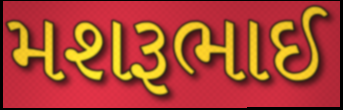
મશરૂભાઈ